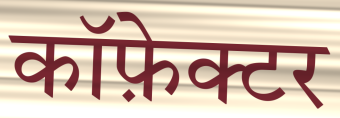
कॉफ़ेक्टर